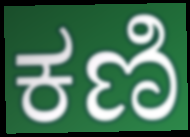
ಕಣಿ